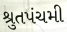
શ્રુતપંચમી